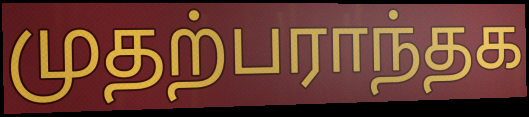
முதற்பராந்தக